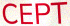
CEPT